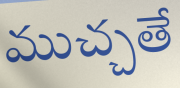
ముచ్చతే